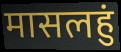
मासलहुं